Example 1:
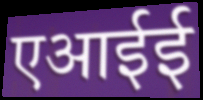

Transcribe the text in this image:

एआईई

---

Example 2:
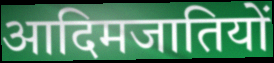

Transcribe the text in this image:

आदिमजातियों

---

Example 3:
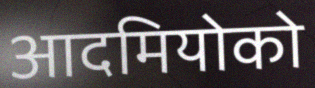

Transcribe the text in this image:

आदमियोको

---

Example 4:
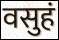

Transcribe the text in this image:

वसुहं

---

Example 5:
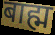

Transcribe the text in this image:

बाह्म